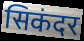
सिकंदर